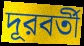
দূরবর্তী